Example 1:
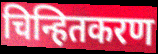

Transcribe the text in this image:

चिन्हितकरण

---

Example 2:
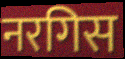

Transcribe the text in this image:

नरगिस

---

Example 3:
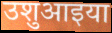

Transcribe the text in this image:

उशुआइया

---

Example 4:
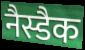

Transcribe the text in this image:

नैस्डैक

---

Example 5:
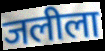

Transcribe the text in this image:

जलीला